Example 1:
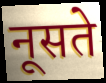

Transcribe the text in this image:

नूसते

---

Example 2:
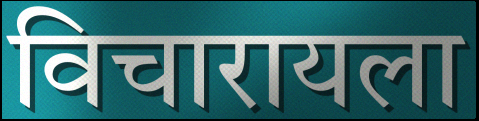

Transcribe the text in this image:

विचारायला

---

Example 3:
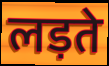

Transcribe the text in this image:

लड़ते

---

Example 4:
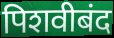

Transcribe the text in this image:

पिशवीबंद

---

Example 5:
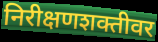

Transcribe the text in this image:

निरीक्षणशक्तीवर